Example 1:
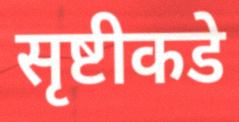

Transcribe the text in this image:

सृष्टीकडे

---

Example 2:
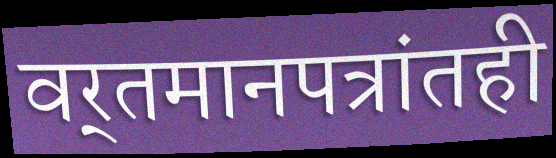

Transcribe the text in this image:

वर्तमानपत्रांतही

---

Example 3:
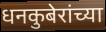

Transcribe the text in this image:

धनकुबेरांच्या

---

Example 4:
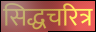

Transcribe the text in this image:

सिद्धचरित्र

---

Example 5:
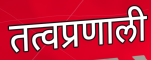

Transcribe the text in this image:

तत्वप्रणाली